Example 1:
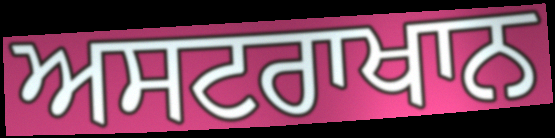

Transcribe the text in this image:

ਅਸਟਰਾਖਾਨ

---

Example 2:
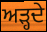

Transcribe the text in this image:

ਅੜ੍ਹਦੇ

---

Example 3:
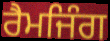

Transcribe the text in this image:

ਰੈਮਜਿੰਗ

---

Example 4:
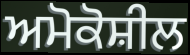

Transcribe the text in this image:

ਅਮੋਕੋਸ਼ੀਲ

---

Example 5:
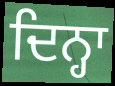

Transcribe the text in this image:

ਦਿਨ੍ਹਾ